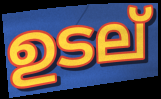
ഉടല്